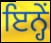
ਇਨ੍ਹੇਂ